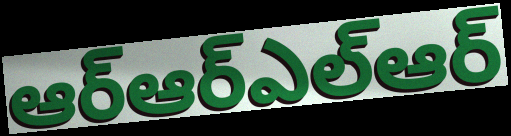
ఆర్ఆర్ఎల్ఆర్